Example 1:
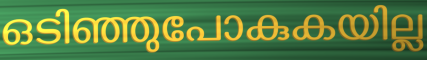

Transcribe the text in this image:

ഒടിഞ്ഞുപോകുകയില്ല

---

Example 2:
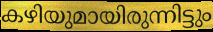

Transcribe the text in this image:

കഴിയുമായിരുന്നിട്ടും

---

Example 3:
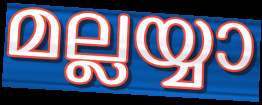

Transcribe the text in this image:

മല്ലയ്യാ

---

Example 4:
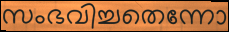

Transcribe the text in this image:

സംഭവിച്ചതെന്നോ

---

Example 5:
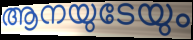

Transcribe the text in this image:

ആനയുടേയും